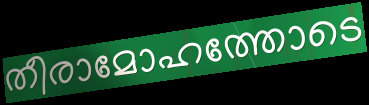
തീരാമോഹത്തോടെ